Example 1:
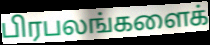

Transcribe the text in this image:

பிரபலங்களைக்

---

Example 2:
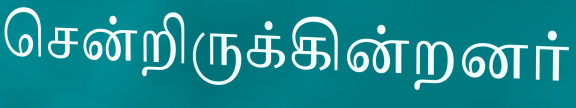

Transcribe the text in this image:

சென்றிருக்கின்றனர்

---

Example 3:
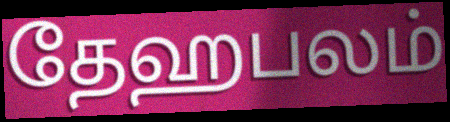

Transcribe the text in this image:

தேஹபலம்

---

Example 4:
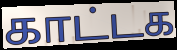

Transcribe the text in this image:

காட்டக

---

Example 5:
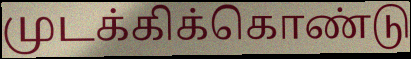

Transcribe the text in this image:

முடக்கிக்கொண்டு